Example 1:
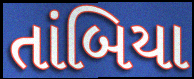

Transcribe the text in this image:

તાંબિયા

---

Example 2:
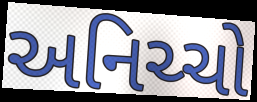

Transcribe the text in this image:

અનિચ્ચો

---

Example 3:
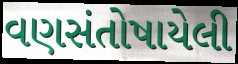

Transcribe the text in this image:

વણસંતોષાયેલી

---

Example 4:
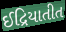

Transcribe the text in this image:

ઈદ્રિયાતીત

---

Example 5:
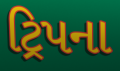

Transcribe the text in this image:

ટ્રિપના